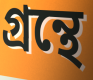
গ্রন্থে